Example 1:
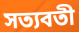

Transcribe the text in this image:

সত্যবতী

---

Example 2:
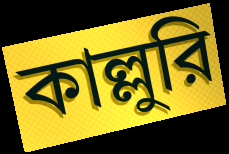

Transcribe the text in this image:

কাল্লুরি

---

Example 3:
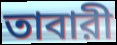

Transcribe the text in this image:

তাবারী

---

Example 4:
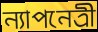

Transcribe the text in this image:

ন্যাপনেত্রী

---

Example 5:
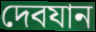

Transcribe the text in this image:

দেবযান